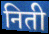
निती